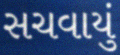
સચવાયું